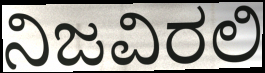
ನಿಜವಿರಲಿ